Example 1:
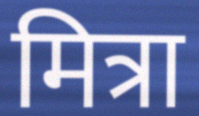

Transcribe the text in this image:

मित्रा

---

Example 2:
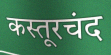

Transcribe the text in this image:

कस्तूरचंद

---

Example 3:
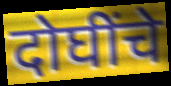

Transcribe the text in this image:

दोघींचे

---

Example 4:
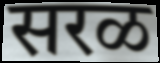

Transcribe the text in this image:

सरळ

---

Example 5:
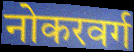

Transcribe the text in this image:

नोकरवर्ग